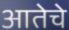
आतेचे